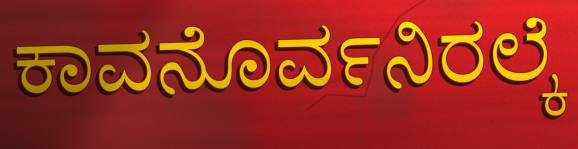
ಕಾವನೊರ್ವನಿರಲ್ಕೆ